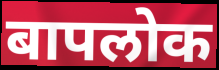
बापलोक